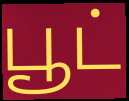
பூட்